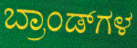
ಬ್ರಾಂಡ್‌ಗಳ